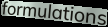
formulations